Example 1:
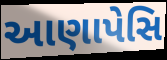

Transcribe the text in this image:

આણાપેસિ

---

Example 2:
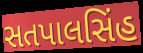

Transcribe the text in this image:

સતપાલસિંહ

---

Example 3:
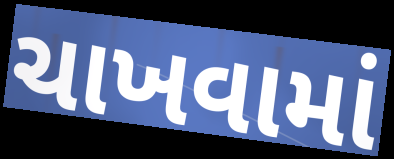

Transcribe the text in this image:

ચાખવામાં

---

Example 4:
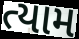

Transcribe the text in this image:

ત્યામ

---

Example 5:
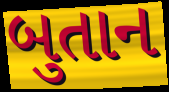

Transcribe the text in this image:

બુતાન